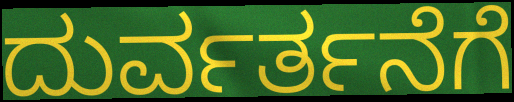
ದುರ್ವರ್ತನೆಗೆ